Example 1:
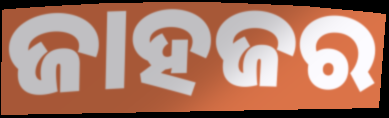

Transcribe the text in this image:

ଜାହଜର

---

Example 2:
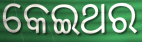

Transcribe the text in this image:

କେଇଥର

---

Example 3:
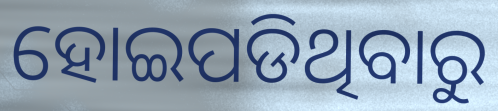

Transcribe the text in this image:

ହୋଇପଡିଥିବାରୁ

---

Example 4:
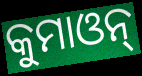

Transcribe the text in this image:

କୁମାଓନ୍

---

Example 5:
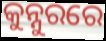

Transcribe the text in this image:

କୁନ୍ନୁରରେ